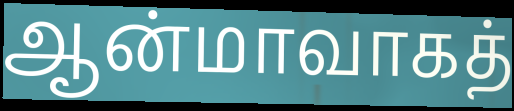
ஆன்மாவாகத்